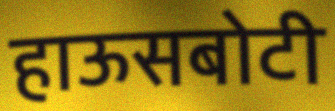
हाऊसबोटी